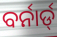
ବର୍ନାର୍ଡ୍